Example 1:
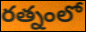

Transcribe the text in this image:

రత్నంలో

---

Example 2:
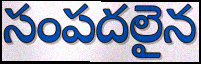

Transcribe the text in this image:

సంపదలైన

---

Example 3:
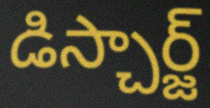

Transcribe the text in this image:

డిస్చార్జ్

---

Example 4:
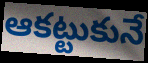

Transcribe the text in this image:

ఆకట్టుకునే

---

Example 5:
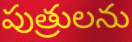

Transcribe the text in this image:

పుత్రులను